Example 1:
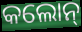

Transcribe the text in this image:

କଲୋନ୍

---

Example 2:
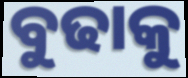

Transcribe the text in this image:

ବୁଢାକୁ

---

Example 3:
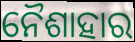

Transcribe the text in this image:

ନୈଶାହାର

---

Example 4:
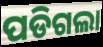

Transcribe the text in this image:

ପଡିଗଲା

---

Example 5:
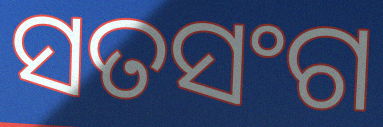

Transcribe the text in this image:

ସତସଂଗ